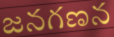
జనగణన